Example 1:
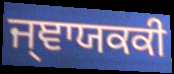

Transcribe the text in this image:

ਜ੍ਞਾਯਕਕੀ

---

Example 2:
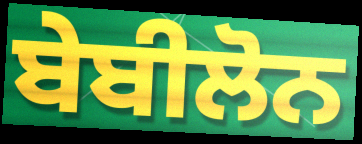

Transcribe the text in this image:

ਬੇਬੀਲੋਨ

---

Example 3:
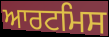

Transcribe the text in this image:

ਆਰਟਮਿਸ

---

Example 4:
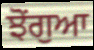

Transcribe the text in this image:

ਝੋਂਗੁਆ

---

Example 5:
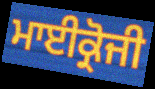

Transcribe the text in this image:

ਮਾਈਕ੍ਰੋਜੀ